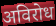
अविरोध